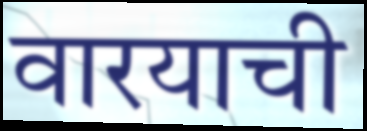
वारयाची